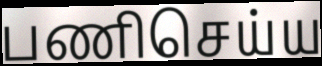
பணிசெய்ய